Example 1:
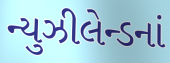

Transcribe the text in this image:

ન્યુઝીલેન્ડનાં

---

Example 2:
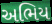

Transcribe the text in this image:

અભિય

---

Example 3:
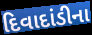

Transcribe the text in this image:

દિવાદાંડીના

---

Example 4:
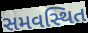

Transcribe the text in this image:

સમવસ્થિત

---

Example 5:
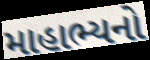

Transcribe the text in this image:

માહાભ્યનો